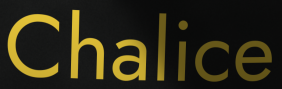
Chalice